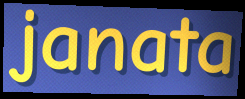
janata